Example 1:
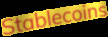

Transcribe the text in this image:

Stablecoins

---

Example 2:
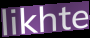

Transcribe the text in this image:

likhte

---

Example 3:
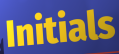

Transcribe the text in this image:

Initials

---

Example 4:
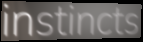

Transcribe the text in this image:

instincts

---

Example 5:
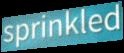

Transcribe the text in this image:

sprinkled